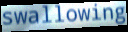
swallowing